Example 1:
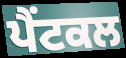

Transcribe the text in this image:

ਪੈਂਟਕਲ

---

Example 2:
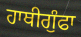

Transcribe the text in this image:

ਹਾਥੀਗੁੰਫਾ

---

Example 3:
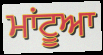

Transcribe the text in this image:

ਮਾਂਟੂਆ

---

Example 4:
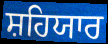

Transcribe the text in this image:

ਸ਼ਹਿਯਾਰ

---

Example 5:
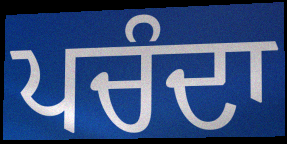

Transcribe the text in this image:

ਪਚੰਦਾ